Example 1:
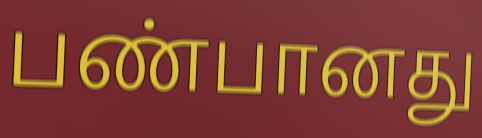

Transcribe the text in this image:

பண்பானது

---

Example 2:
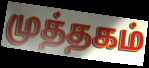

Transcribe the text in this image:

முத்தகம்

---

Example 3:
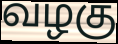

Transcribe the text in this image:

வழகு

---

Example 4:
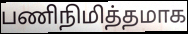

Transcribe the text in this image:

பணிநிமித்தமாக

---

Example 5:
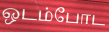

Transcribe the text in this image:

ஒடம்போட